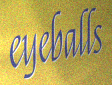
eyeballs